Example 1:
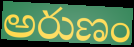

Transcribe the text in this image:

అరుణం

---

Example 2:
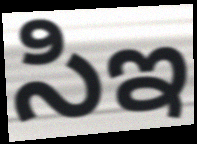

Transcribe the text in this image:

సిఇ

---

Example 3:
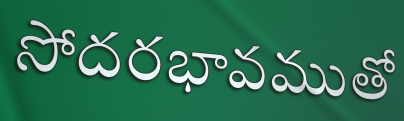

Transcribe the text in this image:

సోదరభావముతో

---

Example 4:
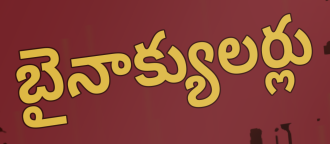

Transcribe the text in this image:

బైనాక్యులర్లు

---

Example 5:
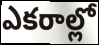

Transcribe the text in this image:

ఎకరాల్లో